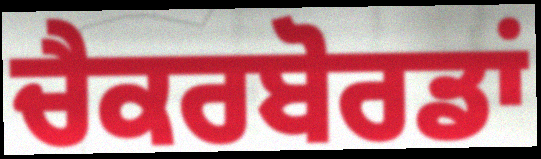
ਚੈਕਰਬੋਰਡਾਂ